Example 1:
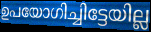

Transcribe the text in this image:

ഉപയോഗിച്ചിട്ടേയില്ല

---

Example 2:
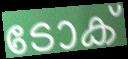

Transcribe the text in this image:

ടോക്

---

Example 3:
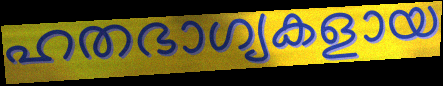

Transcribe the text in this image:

ഹതഭാഗ്യകളായ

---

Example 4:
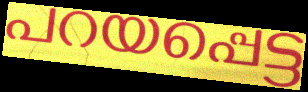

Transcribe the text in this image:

പറയപ്പെട്ട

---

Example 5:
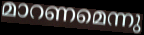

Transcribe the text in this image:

മാറണമെന്നു